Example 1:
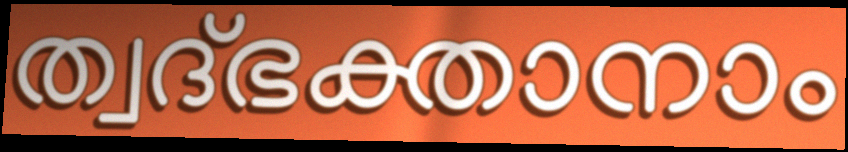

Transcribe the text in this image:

ത്വദ്ഭക്താനാം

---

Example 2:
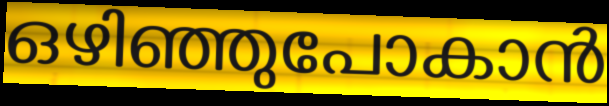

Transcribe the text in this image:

ഒഴിഞ്ഞുപോകാൻ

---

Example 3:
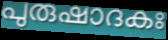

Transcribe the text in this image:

പുരുഷാദകഃ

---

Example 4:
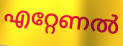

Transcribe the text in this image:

എറ്റേണൽ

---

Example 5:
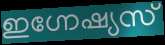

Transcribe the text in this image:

ഇഗ്നേഷ്യസ്